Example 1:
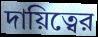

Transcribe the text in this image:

দায়িত্বের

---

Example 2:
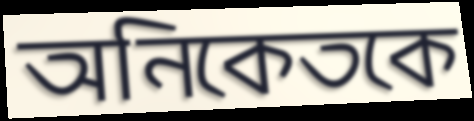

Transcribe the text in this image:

অনিকেতকে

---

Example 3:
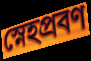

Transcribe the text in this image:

স্নেহপ্রবণ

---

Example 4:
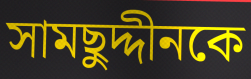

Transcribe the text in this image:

সামছুদ্দীনকে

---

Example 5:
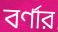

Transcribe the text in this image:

বর্ণার